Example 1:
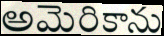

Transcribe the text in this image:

అమెరికాను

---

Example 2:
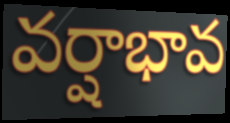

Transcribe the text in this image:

వర్షాభావ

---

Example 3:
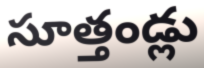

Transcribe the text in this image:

సూత్తండ్లు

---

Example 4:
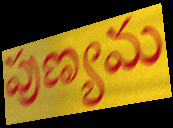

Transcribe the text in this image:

పుణ్యమ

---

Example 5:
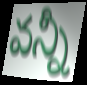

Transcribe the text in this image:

వన్నీ